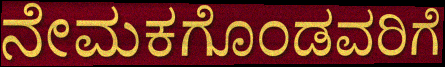
ನೇಮಕಗೊಂಡವರಿಗೆ